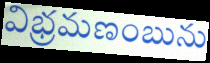
విభ్రమణంబును